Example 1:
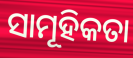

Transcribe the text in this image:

ସାମୂହିକତା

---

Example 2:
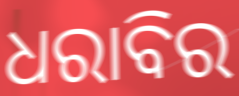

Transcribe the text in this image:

ଧରାବିର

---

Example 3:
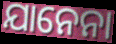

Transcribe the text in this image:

ଯାନେନା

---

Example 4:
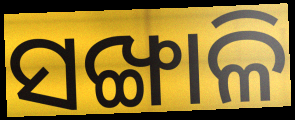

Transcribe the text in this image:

ସଙ୍ଖାଳି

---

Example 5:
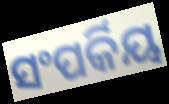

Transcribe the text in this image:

ସଂପର୍କିୟ